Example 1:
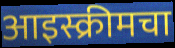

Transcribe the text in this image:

आइस्क्रीमचा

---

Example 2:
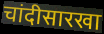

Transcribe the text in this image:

चांदीसारखा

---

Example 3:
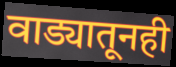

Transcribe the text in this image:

वाड्यातूनही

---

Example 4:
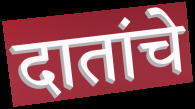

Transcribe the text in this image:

दातांचे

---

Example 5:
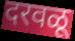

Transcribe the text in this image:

दरवळू